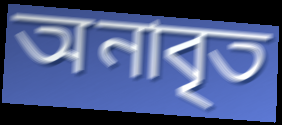
অনাবৃত